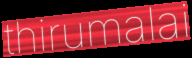
thirumalai